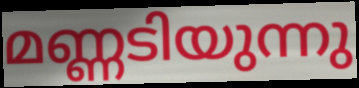
മണ്ണടിയുന്നു